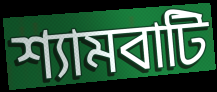
শ্যামবাটি